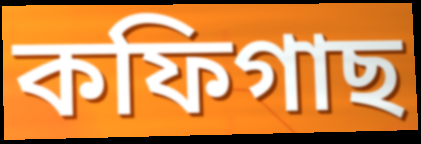
কফিগাছ